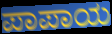
ಪಾಪಾಯ